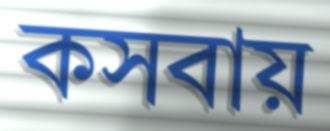
কসবায়